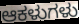
ಆಕಳುಗಳು